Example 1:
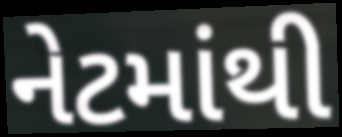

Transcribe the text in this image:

નેટમાંથી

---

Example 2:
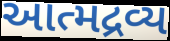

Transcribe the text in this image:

આત્મદ્રવ્ય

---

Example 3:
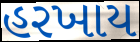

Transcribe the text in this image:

હરખાય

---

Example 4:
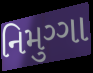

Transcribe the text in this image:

નિમુગ્ગા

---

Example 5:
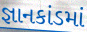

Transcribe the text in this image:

જ્ઞાનકાંડમાં